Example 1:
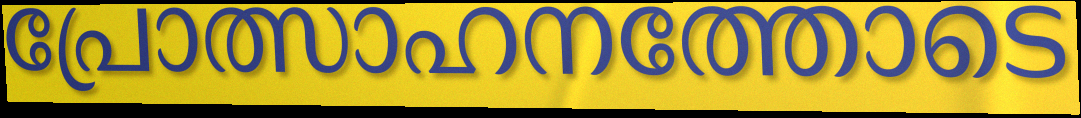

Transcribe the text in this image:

പ്രോത്സാഹനത്തോടെ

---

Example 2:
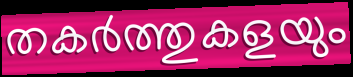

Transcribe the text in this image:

തകർത്തുകളയും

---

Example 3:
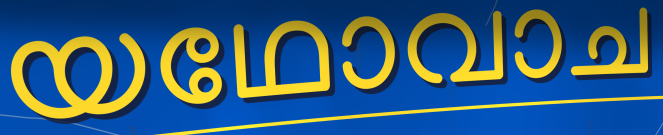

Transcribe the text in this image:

യഥോവാച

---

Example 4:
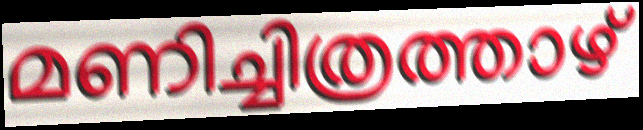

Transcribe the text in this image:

മണിച്ചിത്രത്താഴ്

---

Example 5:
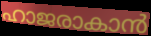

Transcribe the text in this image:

ഹാജരാകാൻ